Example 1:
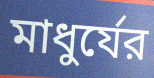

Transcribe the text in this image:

মাধুর্যের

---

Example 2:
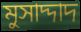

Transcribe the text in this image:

মুসাদ্দাদ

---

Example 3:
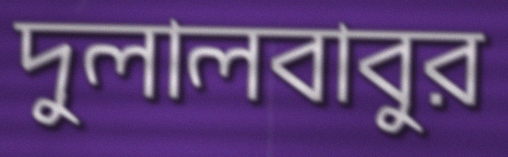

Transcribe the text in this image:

দুলালবাবুর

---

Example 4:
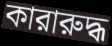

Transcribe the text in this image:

কারারুদ্ধ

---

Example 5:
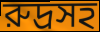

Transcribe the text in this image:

রুদ্রসহ